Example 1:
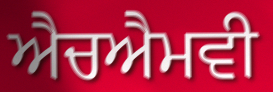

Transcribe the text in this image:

ਐਚਐਮਵੀ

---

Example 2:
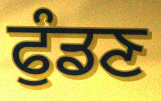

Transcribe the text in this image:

ਫੁੰਡਣ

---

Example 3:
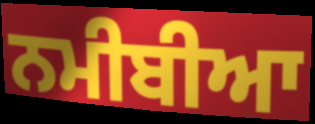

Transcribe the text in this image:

ਨਮੀਬੀਆ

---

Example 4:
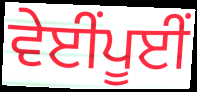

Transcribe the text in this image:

ਵੇਈਂਪੂਈਂ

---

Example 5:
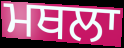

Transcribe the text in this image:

ਮਥਲਾ